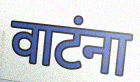
वाटंना